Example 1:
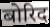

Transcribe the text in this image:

बोरिद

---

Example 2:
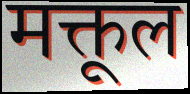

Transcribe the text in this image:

मक्तूल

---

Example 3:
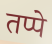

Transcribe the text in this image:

तप्पे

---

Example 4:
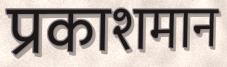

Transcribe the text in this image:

प्रकाशमान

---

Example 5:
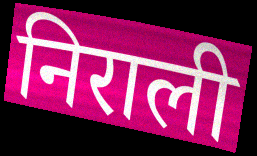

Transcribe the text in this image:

निराली